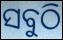
ସବୁଠି